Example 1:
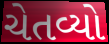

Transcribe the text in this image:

ચેતવ્યો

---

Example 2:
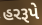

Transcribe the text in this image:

હરરૂપે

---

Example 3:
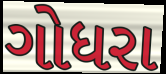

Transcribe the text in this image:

ગોધરા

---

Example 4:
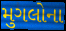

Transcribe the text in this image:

મુગલોના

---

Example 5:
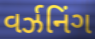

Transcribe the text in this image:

વર્ઝનિંગ